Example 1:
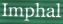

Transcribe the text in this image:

Imphal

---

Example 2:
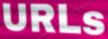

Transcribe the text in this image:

URLs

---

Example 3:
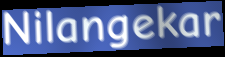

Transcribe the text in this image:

Nilangekar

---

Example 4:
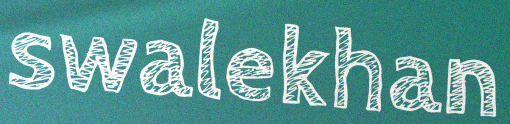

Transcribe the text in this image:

swalekhan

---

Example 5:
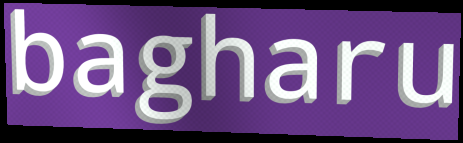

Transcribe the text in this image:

bagharu